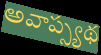
అవాప్స్యథ